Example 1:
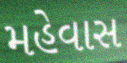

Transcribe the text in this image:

મહેવાસ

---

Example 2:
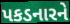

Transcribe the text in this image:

પકડનારને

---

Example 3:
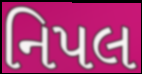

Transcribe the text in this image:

નિપલ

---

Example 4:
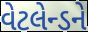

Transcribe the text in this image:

વેટલેન્ડને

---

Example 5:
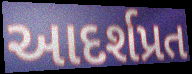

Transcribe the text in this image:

આદર્શપ્રત